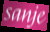
sanje